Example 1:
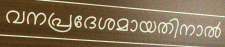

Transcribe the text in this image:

വനപ്രദേശമായതിനാൽ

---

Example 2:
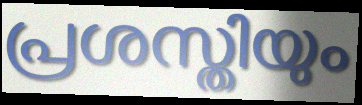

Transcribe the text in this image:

പ്രശസ്തിയും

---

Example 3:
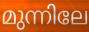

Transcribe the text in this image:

മുന്നിലേ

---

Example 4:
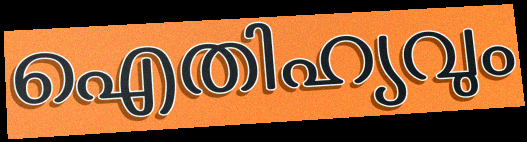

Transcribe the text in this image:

ഐതിഹ്യവും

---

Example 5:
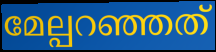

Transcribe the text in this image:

മേല്പറഞ്ഞത്